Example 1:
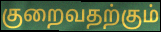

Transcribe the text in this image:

குறைவதற்கும்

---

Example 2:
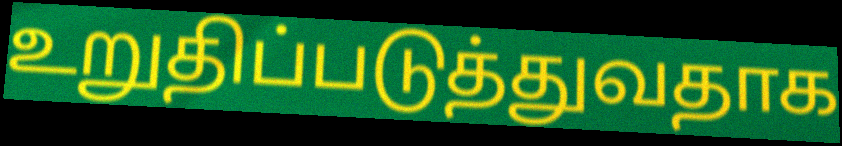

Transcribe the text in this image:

உறுதிப்படுத்துவதாக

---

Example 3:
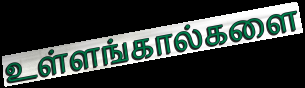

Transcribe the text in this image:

உள்ளங்கால்களை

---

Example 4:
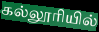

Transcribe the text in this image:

கல்லூரியில்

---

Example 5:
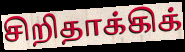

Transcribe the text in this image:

சிறிதாக்கிக்